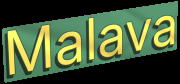
Malava